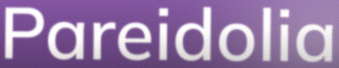
Pareidolia